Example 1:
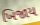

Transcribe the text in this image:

ખિજાય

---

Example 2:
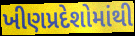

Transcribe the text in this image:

ખીણપ્રદેશોમાંથી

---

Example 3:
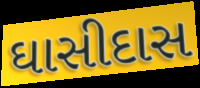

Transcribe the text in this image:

ઘાસીદાસ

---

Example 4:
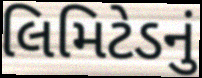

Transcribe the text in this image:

લિમિટેડનું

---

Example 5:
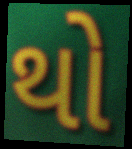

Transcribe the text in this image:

થો